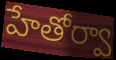
హేతోర్వా